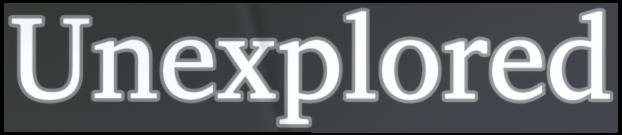
Unexplored